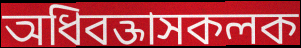
অধিবক্তাসকলক